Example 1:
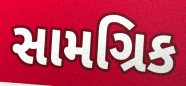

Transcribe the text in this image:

સામગ્રિક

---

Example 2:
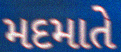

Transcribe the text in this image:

મદમાતે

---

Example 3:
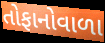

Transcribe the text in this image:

તોફાનોવાળા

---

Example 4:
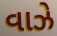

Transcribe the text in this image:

વાઝે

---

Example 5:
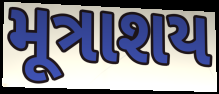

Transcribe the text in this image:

મૂત્રાશય